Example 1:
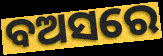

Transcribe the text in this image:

ବଅସରେ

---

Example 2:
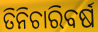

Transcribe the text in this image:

ତିନିଚାରିବର୍ଷ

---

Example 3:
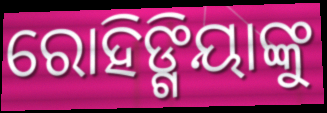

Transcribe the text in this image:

ରୋହିଙ୍ଗିୟାଙ୍କୁ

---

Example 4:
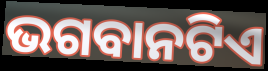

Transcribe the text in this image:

ଭଗବାନଟିଏ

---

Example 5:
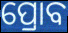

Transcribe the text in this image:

ପ୍ରୋବ